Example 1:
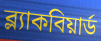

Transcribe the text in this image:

ব্ল্যাকবিয়ার্ড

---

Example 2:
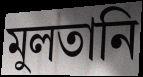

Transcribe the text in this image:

মুলতানি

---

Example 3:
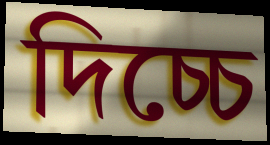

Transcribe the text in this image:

দিচ্চে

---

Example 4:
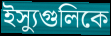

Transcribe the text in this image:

ইস্যুগুলিকে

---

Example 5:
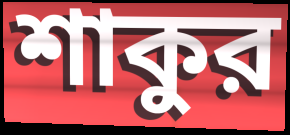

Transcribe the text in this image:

শাকুর